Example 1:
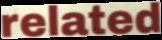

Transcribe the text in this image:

related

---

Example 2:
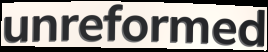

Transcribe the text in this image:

unreformed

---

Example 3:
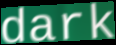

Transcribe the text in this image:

dark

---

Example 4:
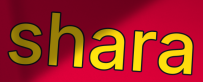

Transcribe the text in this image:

shara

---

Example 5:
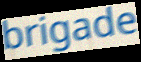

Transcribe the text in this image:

brigade